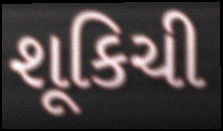
શૂકિચી